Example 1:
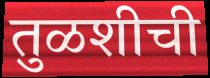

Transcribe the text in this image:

तुळशीची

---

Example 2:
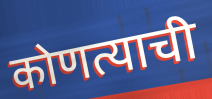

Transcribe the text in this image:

कोणत्याची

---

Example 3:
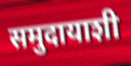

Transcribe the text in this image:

समुदायाशी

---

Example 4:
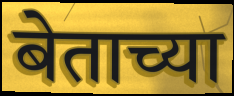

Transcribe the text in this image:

बेताच्या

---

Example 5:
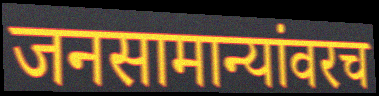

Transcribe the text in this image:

जनसामान्यांवरच